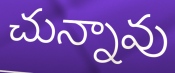
చున్నావు